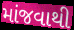
માંજવાથી